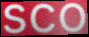
sco